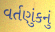
વર્તણુંકનું